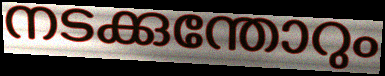
നടക്കുന്തോറും